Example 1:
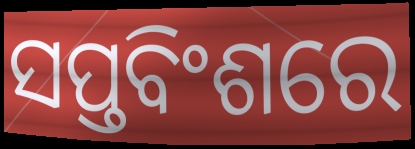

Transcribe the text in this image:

ସପ୍ତବିଂଶରେ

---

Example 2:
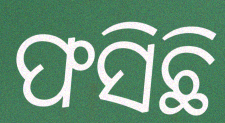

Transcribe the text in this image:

ଫସିଛି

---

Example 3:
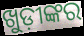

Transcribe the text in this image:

ଖୁଡ଼ୀଙ୍କର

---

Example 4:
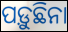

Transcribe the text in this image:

ପଡ଼ୁଛିନା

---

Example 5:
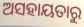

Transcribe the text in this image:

ଅସହାୟତାରୁ